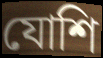
যোশি